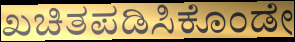
ಖಚಿತಪಡಿಸಿಕೊಂಡೇ